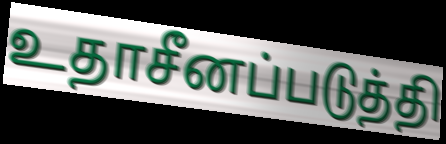
உதாசீனப்படுத்தி